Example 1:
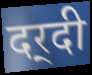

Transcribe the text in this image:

दर्दी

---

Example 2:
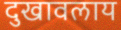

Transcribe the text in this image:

दुखावलाय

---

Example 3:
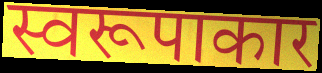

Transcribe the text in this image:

स्वरूपाकार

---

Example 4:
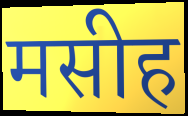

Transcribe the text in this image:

मसीह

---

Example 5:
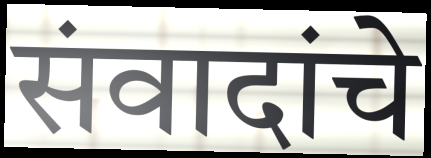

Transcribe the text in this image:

संवादांचे